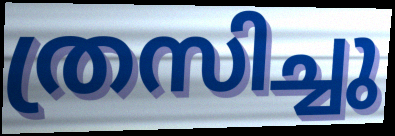
ത്രസിച്ചു